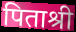
पिताश्री